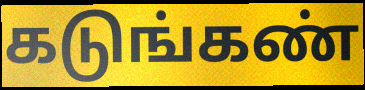
கடுங்கண்